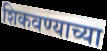
शिकवण्याच्या